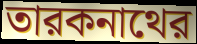
তারকনাথের